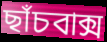
ছাঁচবাক্স